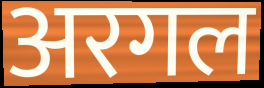
अरगल